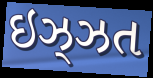
ઇઝ્ઝત